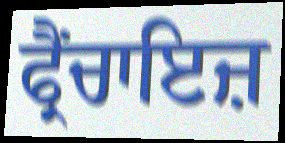
ਫ੍ਰੈਂਚਾਇਜ਼